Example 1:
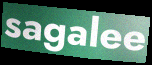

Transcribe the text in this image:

sagalee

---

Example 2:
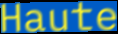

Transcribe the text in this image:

Haute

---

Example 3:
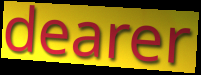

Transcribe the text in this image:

dearer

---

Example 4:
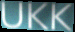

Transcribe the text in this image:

UKK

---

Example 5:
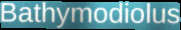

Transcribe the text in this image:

Bathymodiolus